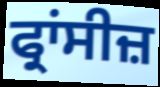
ਫ੍ਰਾਂਸੀਜ਼